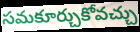
సమకూర్చుకోవచ్చు